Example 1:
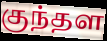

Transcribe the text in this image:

குந்தள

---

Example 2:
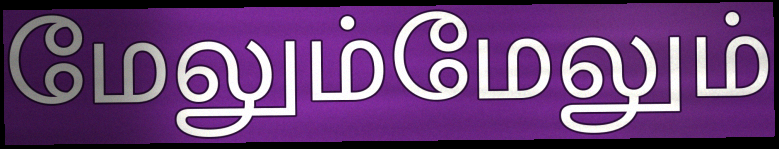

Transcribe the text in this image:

மேலும்மேலும்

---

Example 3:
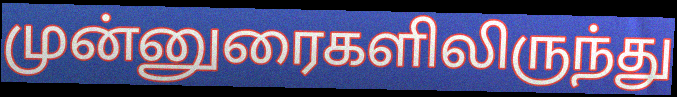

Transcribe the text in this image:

முன்னுரைகளிலிருந்து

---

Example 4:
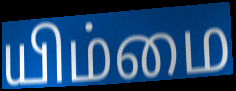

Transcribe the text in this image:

யிம்மை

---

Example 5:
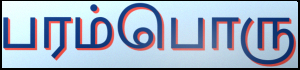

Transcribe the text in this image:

பரம்பொரு